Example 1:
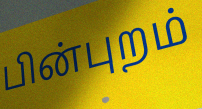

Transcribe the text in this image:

பின்புறம்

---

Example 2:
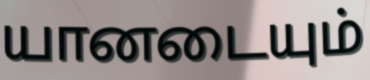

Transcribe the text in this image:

யானடையும்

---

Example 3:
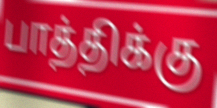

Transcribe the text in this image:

பாத்திக்கு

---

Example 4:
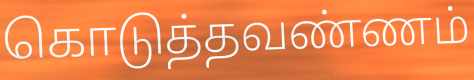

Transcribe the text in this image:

கொடுத்தவண்ணம்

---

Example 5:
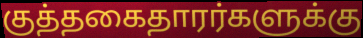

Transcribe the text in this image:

குத்தகைதாரர்களுக்கு